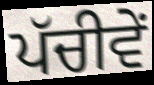
ਪੱਚੀਵੇਂ